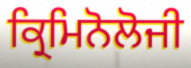
ਕ੍ਰਿਮਿਨੋਲੋਜੀ